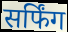
सर्फिंग